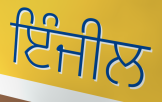
ਇੰਜੀਲ